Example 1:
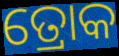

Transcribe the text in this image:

ତ୍ରୋକ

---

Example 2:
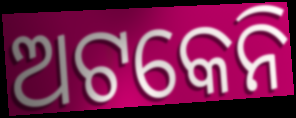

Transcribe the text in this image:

ଅଟକେନି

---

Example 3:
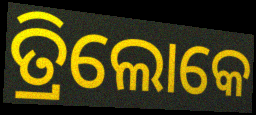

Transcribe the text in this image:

ତ୍ରିଲୋକେ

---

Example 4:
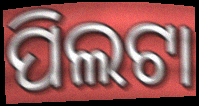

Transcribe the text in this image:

ପିଲଟା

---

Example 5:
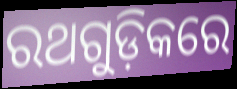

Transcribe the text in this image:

ରଥଗୁଡ଼ିକରେ